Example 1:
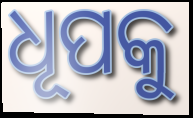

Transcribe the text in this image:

ଧୂପକୁ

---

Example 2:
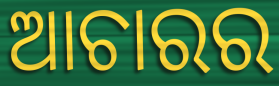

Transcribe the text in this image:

ଆଚାରର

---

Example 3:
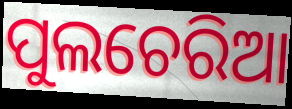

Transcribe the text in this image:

ପୁଲଚେରିଆ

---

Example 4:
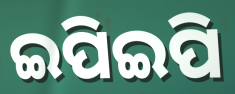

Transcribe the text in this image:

ଇପିଇପି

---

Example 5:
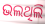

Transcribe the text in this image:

ଭଲଥିଲି